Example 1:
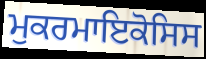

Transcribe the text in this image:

ਮੁਕਰਮਾਇਕੋਸਿਸ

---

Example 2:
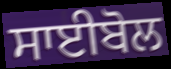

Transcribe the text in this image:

ਸਾਈਬੋਲ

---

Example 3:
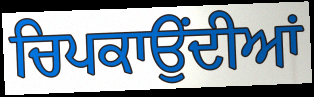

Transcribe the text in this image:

ਚਿਪਕਾਉਂਦੀਆਂ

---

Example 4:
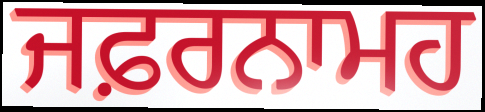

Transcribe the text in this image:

ਜਫ਼ਰਨਾਮਹ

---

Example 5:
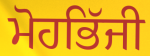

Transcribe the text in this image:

ਮੋਹਭਿੱਜੀ